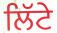
ਲਿੱਟੇ